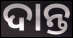
ଦାନ୍ତ